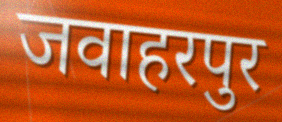
जवाहरपुर